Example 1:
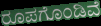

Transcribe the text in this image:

ರೂಪಗೊಂಡಿವೆ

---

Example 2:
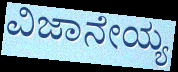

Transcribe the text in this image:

ವಿಜಾನೇಯ್ಯ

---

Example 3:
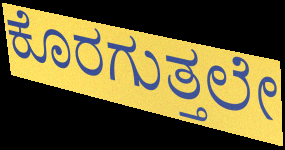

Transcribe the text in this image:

ಕೊರಗುತ್ತಲೇ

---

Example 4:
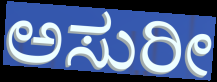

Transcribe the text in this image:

ಅಸುರೀ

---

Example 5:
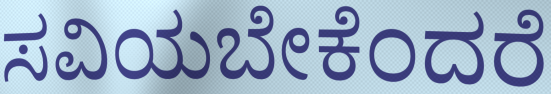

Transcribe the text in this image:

ಸವಿಯಬೇಕೆಂದರೆ